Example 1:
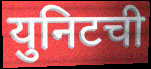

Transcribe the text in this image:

युनिटची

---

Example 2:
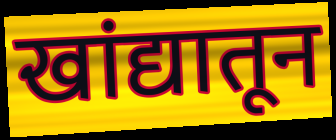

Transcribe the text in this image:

खांद्यातून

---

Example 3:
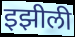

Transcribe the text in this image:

इझीली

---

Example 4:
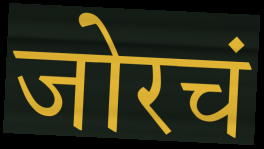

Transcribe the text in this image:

जोरचं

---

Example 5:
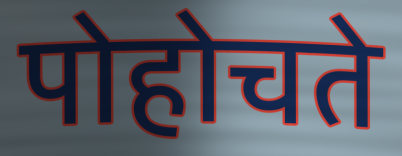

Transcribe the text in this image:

पोहोचते